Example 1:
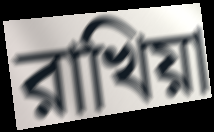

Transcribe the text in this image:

রাখিয়া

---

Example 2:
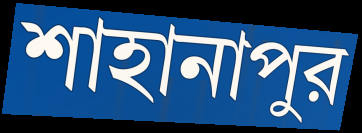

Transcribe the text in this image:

শাহানাপুর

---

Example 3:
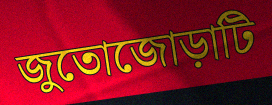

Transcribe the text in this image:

জুতোজোড়াটি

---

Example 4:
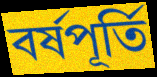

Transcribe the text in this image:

বর্ষপূর্তি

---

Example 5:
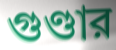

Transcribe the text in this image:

গুণ্ডার